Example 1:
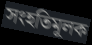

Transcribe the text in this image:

সংহতিমূলক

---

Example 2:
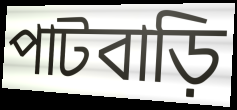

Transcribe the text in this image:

পাটবাড়ি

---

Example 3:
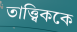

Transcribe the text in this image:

তাত্ত্বিককে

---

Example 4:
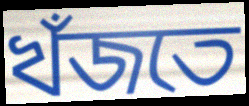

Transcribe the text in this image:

খঁজতে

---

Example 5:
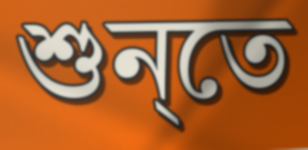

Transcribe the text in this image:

শুন্‌তে